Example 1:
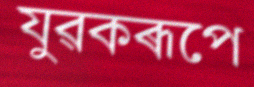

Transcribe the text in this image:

যুৱকৰূপে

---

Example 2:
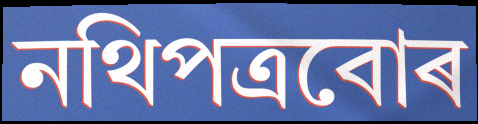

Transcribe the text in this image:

নথিপত্ৰবোৰ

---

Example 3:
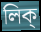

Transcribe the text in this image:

লিক্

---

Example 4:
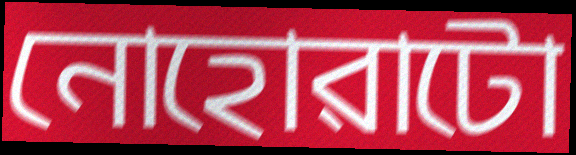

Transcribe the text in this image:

নোহোৱাটো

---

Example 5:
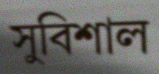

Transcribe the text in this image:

সুবিশাল